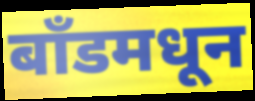
बाँडमधून